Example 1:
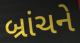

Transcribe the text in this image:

બ્રાંચને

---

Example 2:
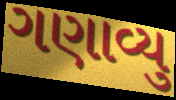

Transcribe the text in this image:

ગણાવ્યુ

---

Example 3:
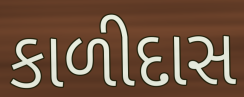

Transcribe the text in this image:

કાળીદાસ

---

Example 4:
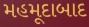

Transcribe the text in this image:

મહમૂદાબાદ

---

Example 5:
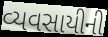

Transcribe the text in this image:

વ્યવસાયીની